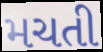
મચતી